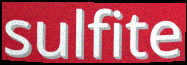
sulfite